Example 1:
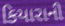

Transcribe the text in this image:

કિયારાની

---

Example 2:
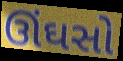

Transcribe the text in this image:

ઊંઘસો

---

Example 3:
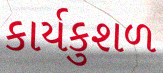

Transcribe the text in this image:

કાર્યકુશળ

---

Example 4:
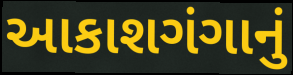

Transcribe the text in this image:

આકાશગંગાનું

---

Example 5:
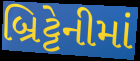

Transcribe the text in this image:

બ્રિટ્ટેનીમાં